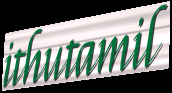
ithutamil